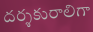
దర్శకురాలిగా